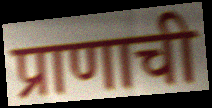
प्राणाची